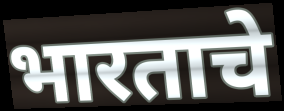
भारताचे